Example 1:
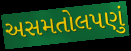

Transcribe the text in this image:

અસમતોલપણું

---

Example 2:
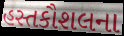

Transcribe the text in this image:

હસ્તકૌશલના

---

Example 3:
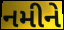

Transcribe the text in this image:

નમીને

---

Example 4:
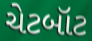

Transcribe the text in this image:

ચેટબૉટ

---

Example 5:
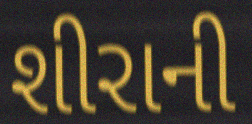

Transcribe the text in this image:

શીરાની